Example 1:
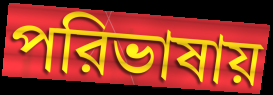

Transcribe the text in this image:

পরিভাষায়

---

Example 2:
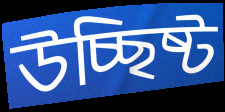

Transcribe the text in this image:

উচ্ছিষ্ট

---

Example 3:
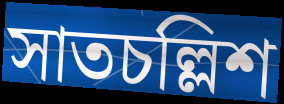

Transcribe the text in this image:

সাতচল্লিশ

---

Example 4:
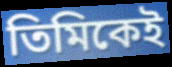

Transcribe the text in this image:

তিমিকেই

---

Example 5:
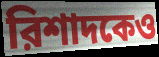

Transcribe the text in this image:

রিশাদকেও